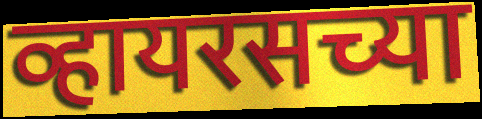
व्हायरसच्या